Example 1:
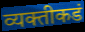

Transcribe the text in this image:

व्यक्तीकडं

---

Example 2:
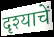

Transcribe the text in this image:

दृश्याचें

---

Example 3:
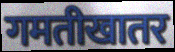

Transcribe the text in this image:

गमतीखातर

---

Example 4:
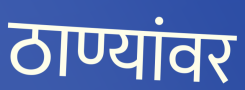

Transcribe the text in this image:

ठाण्यांवर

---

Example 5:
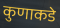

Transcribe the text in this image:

कुणाकडे